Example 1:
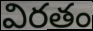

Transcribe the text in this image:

విరతం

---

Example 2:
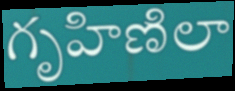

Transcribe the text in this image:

గృహిణిలా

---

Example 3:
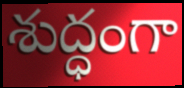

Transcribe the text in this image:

శుద్ధంగా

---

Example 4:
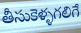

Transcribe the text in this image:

తీసుకెళ్ళగలిగే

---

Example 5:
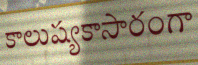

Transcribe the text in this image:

కాలుష్యకాసారంగా